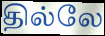
தில்லே